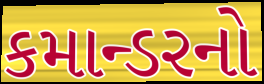
કમાન્ડરનો